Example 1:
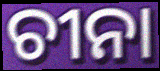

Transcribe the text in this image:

ଚୀନା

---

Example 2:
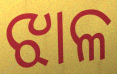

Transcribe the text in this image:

ଝାଳ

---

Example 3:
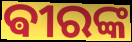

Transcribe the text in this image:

ଵୀରଙ୍କ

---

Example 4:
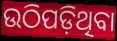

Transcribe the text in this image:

ଉଠିପଡ଼ିଥିବା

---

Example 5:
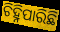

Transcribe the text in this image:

ଚିହ୍ନିପାରିଛି